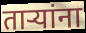
ताऱ्यांना